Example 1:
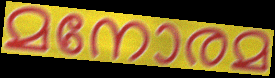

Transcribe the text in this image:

മനോരമ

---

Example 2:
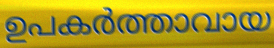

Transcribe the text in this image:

ഉപകർത്താവായ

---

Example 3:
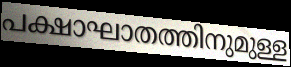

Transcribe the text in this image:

പക്ഷാഘാതത്തിനുമുള്ള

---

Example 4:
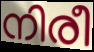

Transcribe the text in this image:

നിരീ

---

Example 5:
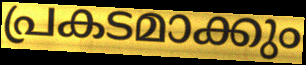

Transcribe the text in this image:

പ്രകടമാക്കും